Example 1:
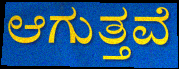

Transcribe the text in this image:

ಆಗುತ್ತವೆ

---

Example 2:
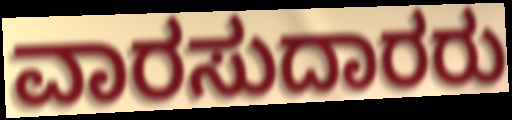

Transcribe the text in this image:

ವಾರಸುದಾರರು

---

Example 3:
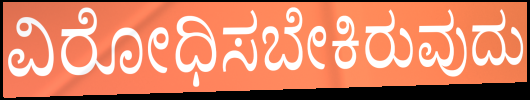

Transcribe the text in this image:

ವಿರೋಧಿಸಬೇಕಿರುವುದು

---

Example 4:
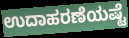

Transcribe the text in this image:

ಉದಾಹರಣೆಯಷ್ಟೆ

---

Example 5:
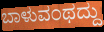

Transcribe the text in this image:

ಬಾಳುವಂಥದ್ದು